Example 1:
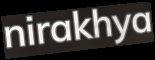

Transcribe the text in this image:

nirakhya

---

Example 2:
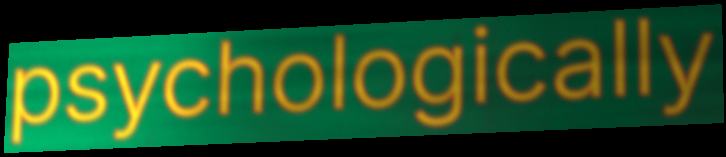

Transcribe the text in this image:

psychologically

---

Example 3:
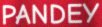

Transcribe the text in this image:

PANDEY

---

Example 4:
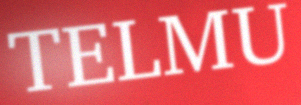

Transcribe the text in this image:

TELMU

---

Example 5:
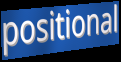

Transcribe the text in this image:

positional